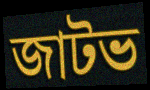
জাটভ